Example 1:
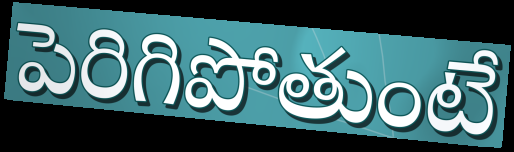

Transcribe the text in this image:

పెరిగిపోతుంటే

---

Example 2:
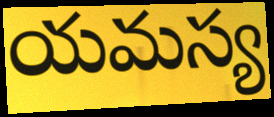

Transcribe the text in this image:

యమస్య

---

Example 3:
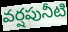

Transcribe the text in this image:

వర్షపునీటి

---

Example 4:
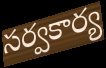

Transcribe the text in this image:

సర్వకార్య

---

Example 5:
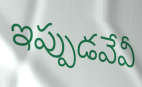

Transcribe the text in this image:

ఇప్పుడవేవీ